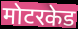
मोटरकेड